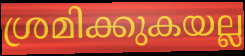
ശ്രമിക്കുകയല്ല